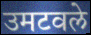
उमटवले